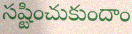
సష్టించుకుందాం